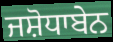
ਜਸ਼ੋਧਾਬੇਨ